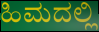
ಹಿಮದಲ್ಲಿ